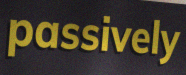
passively